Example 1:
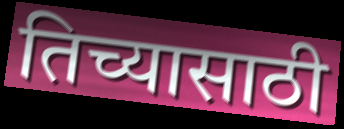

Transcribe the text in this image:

तिच्यासाठी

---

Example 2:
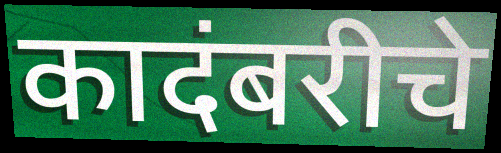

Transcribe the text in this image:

कादंबरीचे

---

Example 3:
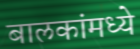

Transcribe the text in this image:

बालकांमध्ये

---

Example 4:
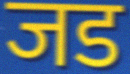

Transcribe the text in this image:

जड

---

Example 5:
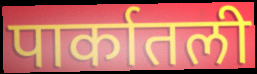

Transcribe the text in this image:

पार्कातली